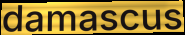
damascus